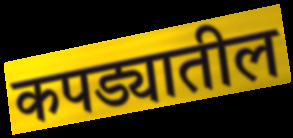
कपड्यातील